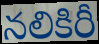
నలికిరీ